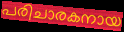
പരിചാരകനായ